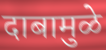
दाबामुळे